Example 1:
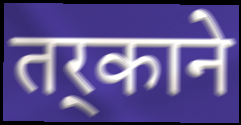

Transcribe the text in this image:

तर्काने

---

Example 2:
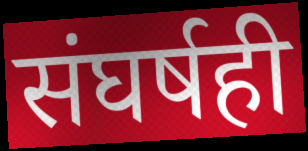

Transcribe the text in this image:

संघर्षही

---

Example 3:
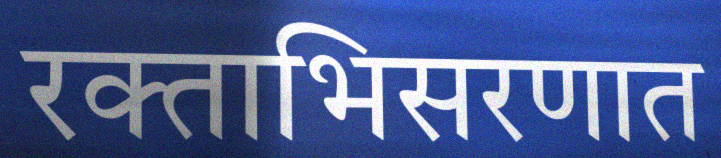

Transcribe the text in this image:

रक्ताभिसरणात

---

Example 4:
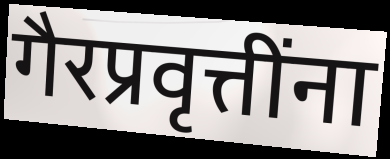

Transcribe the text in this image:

गैरप्रवृत्तींना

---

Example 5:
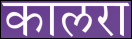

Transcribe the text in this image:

कालरा